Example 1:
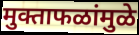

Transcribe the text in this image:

मुक्ताफळांमुळे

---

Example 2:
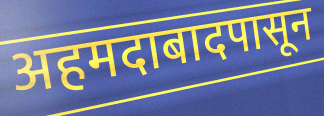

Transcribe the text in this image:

अहमदाबादपासून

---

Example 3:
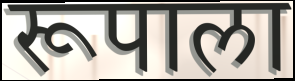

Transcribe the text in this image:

रूपाला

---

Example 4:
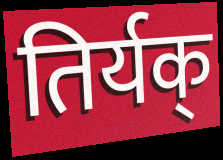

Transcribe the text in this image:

तिर्यक्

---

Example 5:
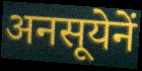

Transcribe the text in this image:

अनसूयेनें